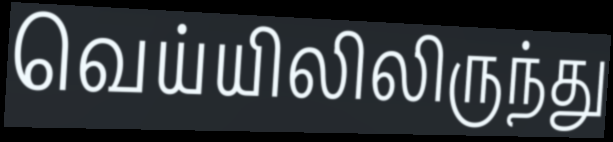
வெய்யிலிலிருந்து